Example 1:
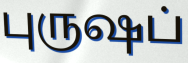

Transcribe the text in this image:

புருஷப்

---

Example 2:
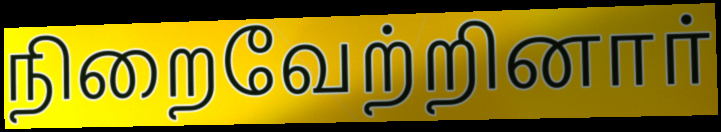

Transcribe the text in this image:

நிறைவேற்றினார்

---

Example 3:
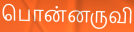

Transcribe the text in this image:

பொன்னருவி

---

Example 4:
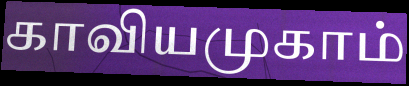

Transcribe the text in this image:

காவியமுகாம்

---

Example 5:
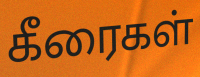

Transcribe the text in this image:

கீரைகள்